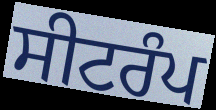
ਸੀਟਰੰਪ